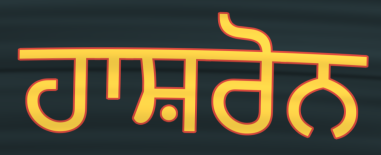
ਹਾਸ਼ਰੋਨ